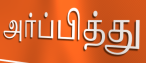
அர்ப்பித்து